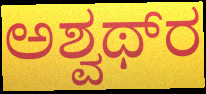
ಅಶ್ವಥ್‌ರ